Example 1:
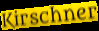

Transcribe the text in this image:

Kirschner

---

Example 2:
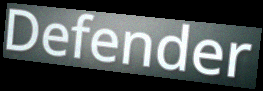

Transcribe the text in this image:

Defender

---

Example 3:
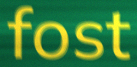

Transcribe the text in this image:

fost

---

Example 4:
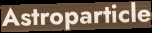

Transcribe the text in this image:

Astroparticle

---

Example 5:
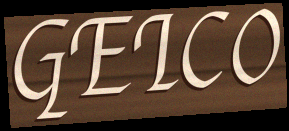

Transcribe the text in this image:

GEICO